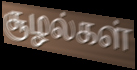
சூழல்கள்